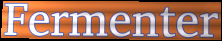
Fermenter